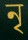
নৃ